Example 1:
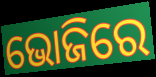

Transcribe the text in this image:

ଭୋଜିରେ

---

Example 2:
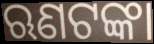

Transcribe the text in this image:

ଋଣଟଙ୍କା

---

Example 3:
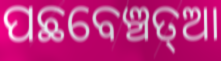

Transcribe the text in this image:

ପଛବେଞ୍ଚତ୍ଆ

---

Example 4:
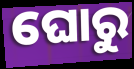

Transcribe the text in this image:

ଘୋରୁ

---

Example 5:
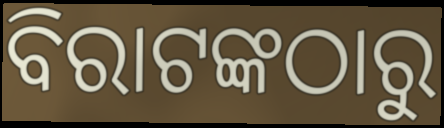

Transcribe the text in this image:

ବିରାଟଙ୍କଠାରୁ